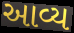
આવ્ય